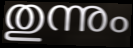
തുന്നും